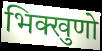
भिक्खुणो